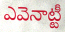
ఎవెనాట్టీ